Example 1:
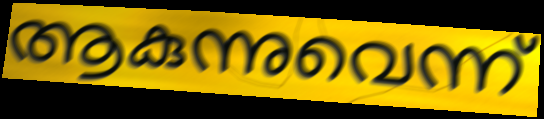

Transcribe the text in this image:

ആകുന്നുവെന്ന്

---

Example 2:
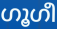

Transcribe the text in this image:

ഗൂഗീ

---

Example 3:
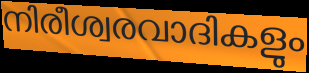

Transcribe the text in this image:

നിരീശ്വരവാദികളും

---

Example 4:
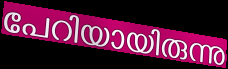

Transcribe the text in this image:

പേറിയായിരുന്നു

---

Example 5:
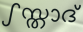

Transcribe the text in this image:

ഽസ്താദ്